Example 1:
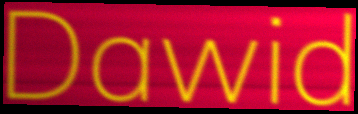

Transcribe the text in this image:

Dawid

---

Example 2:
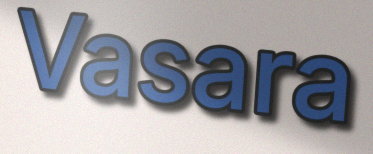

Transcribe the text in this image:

Vasara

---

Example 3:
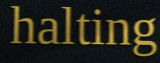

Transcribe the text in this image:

halting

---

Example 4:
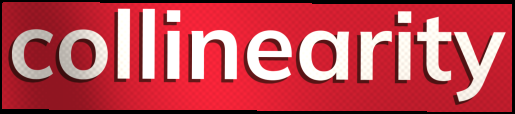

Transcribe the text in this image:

collinearity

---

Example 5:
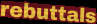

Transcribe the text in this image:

rebuttals